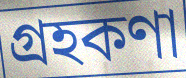
গ্রহকণা